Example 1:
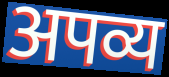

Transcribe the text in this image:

अपव्य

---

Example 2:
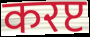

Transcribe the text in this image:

करप्ट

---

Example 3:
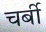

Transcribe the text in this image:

चर्बी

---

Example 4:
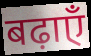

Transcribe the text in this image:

बढ़ाएँ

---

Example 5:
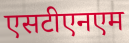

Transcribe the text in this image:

एसटीएनएम